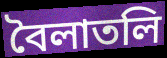
বৈলাতলি